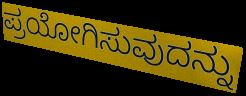
ಪ್ರಯೋಗಿಸುವುದನ್ನು